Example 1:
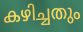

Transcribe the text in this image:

കഴിച്ചതും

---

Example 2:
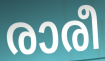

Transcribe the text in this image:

രാരീ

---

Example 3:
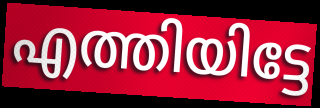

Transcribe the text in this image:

എത്തിയിട്ടേ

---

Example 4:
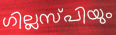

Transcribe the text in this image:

ഗില്ലസ്പിയും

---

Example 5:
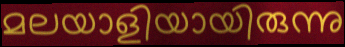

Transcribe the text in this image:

മലയാളിയായിരുന്നു